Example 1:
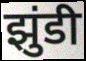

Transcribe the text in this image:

झुंडी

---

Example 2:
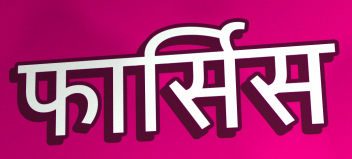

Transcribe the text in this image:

फार्सिस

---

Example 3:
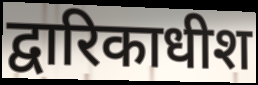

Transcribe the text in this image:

द्वारिकाधीश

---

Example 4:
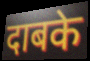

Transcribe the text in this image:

दाबके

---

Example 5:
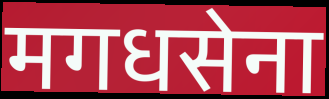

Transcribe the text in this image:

मगधसेना